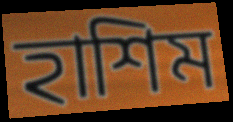
হাশিম